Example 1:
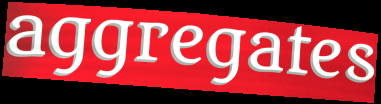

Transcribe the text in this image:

aggregates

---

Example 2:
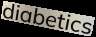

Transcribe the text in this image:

diabetics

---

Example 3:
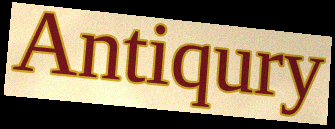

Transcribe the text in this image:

Antiqury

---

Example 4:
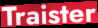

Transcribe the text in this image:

Traister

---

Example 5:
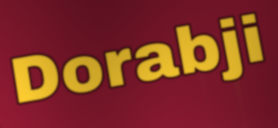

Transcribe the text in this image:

Dorabji